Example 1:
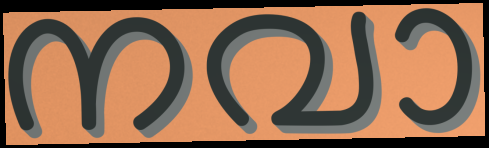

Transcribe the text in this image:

നവാ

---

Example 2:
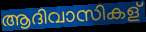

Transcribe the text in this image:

ആദിവാസികള്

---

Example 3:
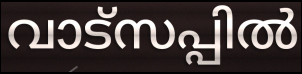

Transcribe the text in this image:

വാട്സപ്പിൽ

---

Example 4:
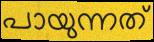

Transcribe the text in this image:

പായുന്നത്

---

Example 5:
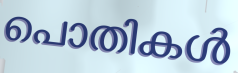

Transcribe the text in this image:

പൊതികൾ